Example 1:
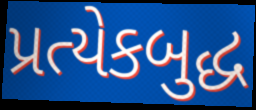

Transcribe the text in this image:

પ્રત્યેકબુદ્ધ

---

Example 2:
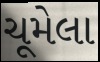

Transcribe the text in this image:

ચૂમેલા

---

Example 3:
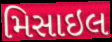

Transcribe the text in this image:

મિસાઇલ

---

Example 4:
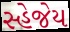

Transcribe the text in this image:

સ્હેજેય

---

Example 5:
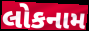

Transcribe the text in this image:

લોકનામ